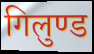
गिलुण्ड